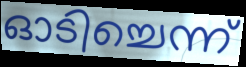
ഓടിച്ചെന്ന്